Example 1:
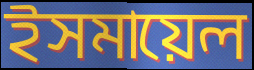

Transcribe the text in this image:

ইসমায়েল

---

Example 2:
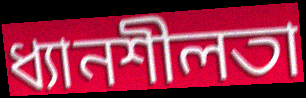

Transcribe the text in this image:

ধ্যানশীলতা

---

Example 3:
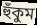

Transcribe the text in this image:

হুঁকুম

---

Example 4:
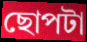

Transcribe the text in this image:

ছোপটা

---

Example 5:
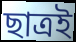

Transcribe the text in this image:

ছাত্রই